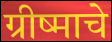
ग्रीष्माचे